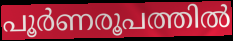
പൂർണരൂപത്തിൽ